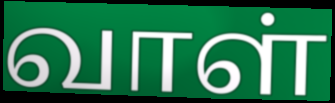
வாள்